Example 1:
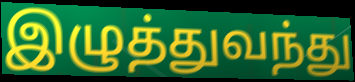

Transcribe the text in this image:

இழுத்துவந்து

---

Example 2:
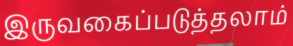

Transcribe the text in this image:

இருவகைப்படுத்தலாம்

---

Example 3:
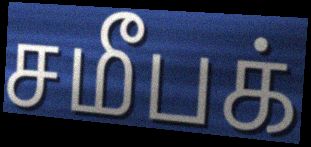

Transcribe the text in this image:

சமீபக்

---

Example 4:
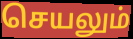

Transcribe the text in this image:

செயலும்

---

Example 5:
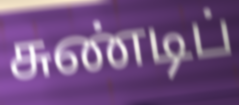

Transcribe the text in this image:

சுண்டிப்